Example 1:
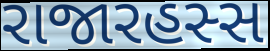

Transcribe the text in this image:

રાજારહસ્સ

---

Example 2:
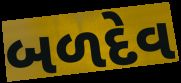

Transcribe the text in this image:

બળદેવ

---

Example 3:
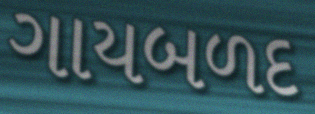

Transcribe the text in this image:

ગાયબળદ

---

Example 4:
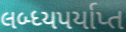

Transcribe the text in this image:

લબ્ધ્યપર્યાપ્ત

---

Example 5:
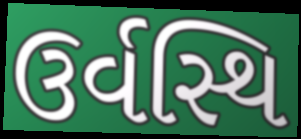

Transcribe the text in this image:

ઉર્વસ્થિ